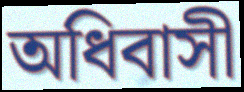
অধিবাসী